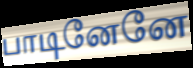
பாடினேனே